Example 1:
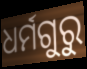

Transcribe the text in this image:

ଧର୍ମଗୁରୁ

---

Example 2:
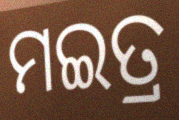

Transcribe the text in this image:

ମଇତ୍ର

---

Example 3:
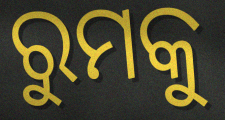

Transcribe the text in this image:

ରୁମକୁ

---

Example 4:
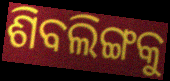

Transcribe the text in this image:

ଶିବଲିଙ୍ଗକୁ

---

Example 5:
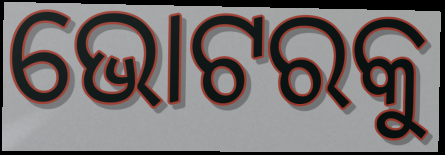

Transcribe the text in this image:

ଭୋଟରକୁ